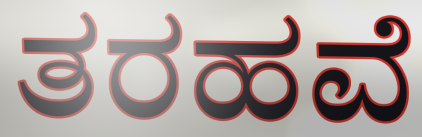
ತರಹವೆ